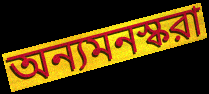
অন্যমনস্করা